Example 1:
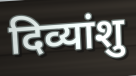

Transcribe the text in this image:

दिव्यांशु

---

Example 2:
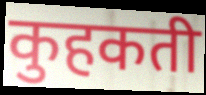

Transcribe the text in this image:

कुहकती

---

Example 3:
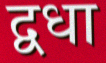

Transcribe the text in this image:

द्वधा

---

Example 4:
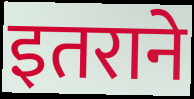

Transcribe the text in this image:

इतराने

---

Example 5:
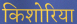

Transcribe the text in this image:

किशोरिया